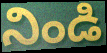
నిండి